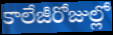
కాలేజీరోజుల్లో